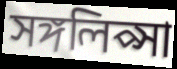
সঙ্গলিপ্সা